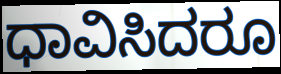
ಧಾವಿಸಿದರೂ